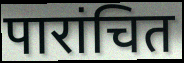
पारांचित